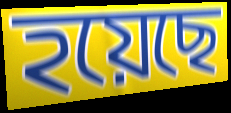
হয়েছে